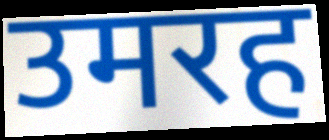
उमरह